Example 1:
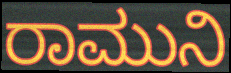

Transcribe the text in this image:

ರಾಮುನಿ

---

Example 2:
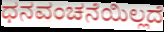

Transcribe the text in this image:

ಧನವಂಚನೆಯಿಲ್ಲದೆ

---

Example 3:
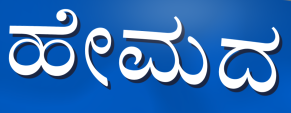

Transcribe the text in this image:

ಹೇಮದ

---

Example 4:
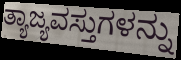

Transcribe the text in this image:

ತ್ಯಾಜ್ಯವಸ್ತುಗಳನ್ನು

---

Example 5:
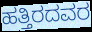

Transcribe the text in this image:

ಹತ್ತಿರದವರ